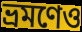
ভ্রমণেও